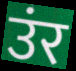
उंर